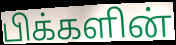
பிக்களின்